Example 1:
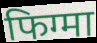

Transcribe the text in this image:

फिग्मा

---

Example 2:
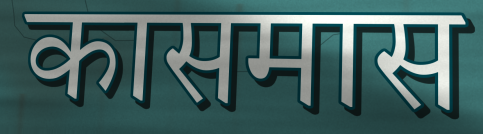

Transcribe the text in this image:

कासमास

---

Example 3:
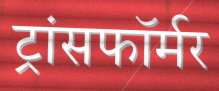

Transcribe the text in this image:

ट्रांसफॉर्मर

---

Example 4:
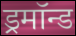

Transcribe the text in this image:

ड्रमॉन्ड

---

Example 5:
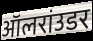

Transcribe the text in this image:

ऑलरांउडर